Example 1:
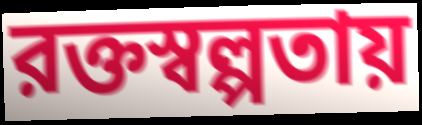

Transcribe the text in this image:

রক্তস্বল্পতায়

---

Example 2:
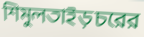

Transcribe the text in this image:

শিমুলতাইড়চরের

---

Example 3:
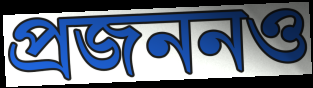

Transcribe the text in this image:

প্রজননও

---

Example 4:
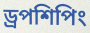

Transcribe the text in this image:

ড্রপশিপিং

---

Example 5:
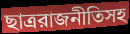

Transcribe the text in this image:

ছাত্ররাজনীতিসহ